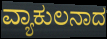
ವ್ಯಾಕುಲನಾದ